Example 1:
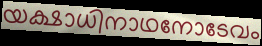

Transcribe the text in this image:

യക്ഷാധിനാഥനോടേവം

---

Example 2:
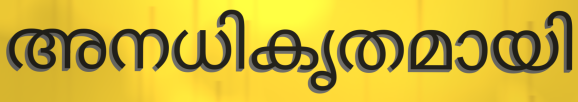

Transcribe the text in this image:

അനധികൃതമായി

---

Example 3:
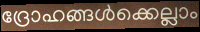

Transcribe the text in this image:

ദ്രോഹങ്ങൾക്കെല്ലാം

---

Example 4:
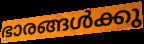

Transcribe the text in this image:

ഭാരങ്ങൾക്കു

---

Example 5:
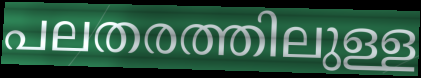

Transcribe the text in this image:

പലതരത്തിലുള്ള